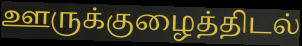
ஊருக்குழைத்திடல்